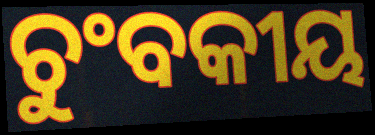
ଚୁଂବକୀୟ